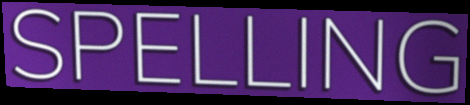
SPELLING